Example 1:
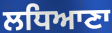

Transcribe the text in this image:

ਲਧਿਆਣਾ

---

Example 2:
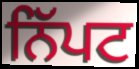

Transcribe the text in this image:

ਨਿੱਪਟ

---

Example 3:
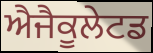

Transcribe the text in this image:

ਐਜੈਕੂਲੇਟਡ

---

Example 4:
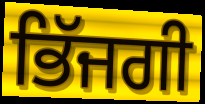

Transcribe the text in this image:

ਭਿੱਜਗੀ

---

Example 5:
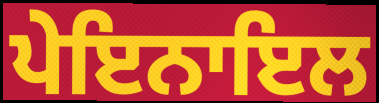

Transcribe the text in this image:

ਪੇਇਨਾਇਲ